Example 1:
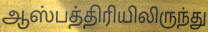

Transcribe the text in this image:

ஆஸ்பத்திரியிலிருந்து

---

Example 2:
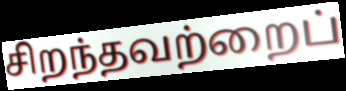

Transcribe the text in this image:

சிறந்தவற்றைப்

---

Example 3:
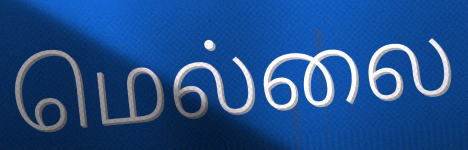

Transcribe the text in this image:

மெல்லை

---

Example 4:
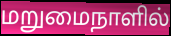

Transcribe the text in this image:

மறுமைநாளில்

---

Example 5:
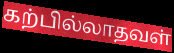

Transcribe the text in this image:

கற்பில்லாதவள்